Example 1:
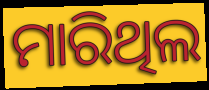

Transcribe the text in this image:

ମାରିଥିଲ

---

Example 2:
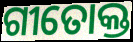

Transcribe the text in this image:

ଗୀତୋକ୍ତ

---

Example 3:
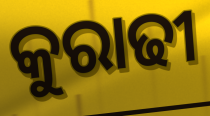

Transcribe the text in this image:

କୁରାଢୀ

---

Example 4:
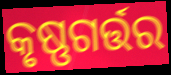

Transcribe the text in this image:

କୃଷ୍ଣଗର୍ତ୍ତର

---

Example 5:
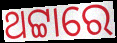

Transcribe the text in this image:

ଥଟ୍ଟାରେ